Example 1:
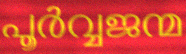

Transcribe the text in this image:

പൂർവ്വജന്മ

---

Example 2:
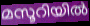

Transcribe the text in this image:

മസൂറിയിൽ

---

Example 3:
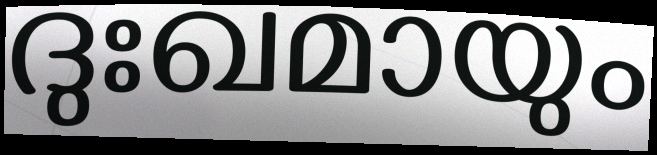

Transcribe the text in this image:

ദുഃഖമായും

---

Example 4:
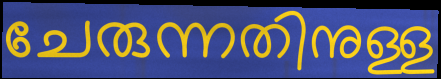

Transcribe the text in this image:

ചേരുന്നതിനുള്ള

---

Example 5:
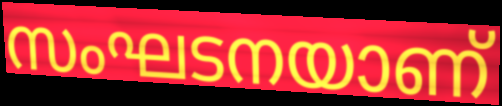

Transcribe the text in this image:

സംഘടനയാണ്